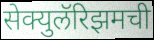
सेक्युलॅरिझमची